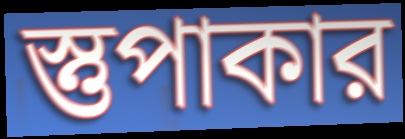
স্তুপাকার